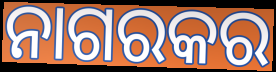
ନାଗରକର